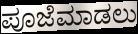
ಪೂಜೆಮಾಡಲು